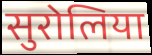
सुरोलिया